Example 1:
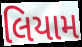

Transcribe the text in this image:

લિયામ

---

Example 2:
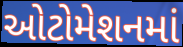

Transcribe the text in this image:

ઓટોમેશનમાં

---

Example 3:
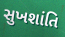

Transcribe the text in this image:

સુખશાંતિ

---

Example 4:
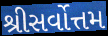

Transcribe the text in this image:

શ્રીસર્વોત્તમ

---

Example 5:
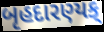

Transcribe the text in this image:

બૃહદારણ્યક્